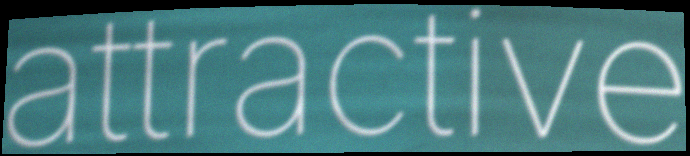
attractive